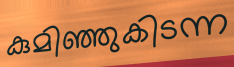
കുമിഞ്ഞുകിടന്ന